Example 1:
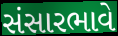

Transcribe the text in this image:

સંસારભાવે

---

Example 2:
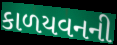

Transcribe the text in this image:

કાળયવનની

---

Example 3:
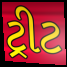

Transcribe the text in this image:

ટ્રીટ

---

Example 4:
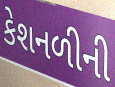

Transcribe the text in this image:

કેશનળીની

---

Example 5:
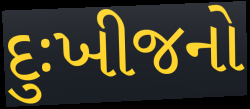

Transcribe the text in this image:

દુઃખીજનો